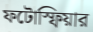
ফটোস্ফিয়ার